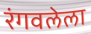
रंगवलेला